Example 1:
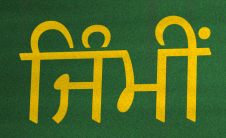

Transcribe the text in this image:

ਜਿੰਮੀਂ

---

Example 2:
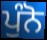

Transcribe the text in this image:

ਪੁੰਨੋ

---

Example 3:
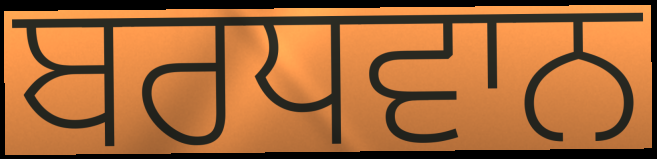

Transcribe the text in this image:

ਬਰਧਵਾਨ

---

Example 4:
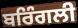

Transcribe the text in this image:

ਬਰਿੰਗਲੀ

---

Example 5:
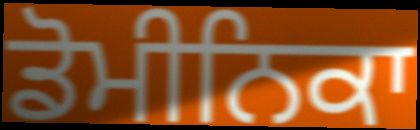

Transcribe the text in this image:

ਡੋਮੀਨਿਕਾ